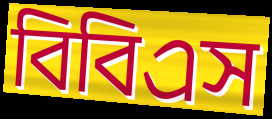
বিবিএস